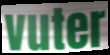
vuter